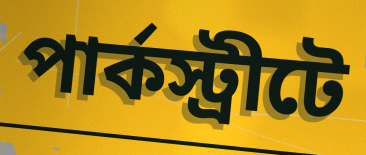
পার্কস্ট্রীটে